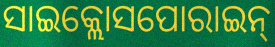
ସାଇକ୍ଲୋସପୋରାଇନ୍